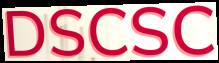
DSCSC